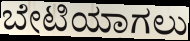
ಬೇಟಿಯಾಗಲು